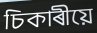
চিকাৰীয়ে